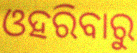
ଓହରିବାରୁ